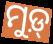
ମୁଡ଼୍